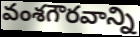
వంశగౌరవాన్ని